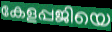
കേളപ്പജിയെ